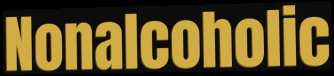
Nonalcoholic